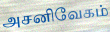
அசனிவேகம்